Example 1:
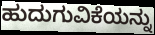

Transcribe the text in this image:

ಹುದುಗುವಿಕೆಯನ್ನು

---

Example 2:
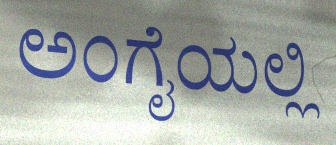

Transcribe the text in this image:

ಅಂಗೈಯಲ್ಲಿ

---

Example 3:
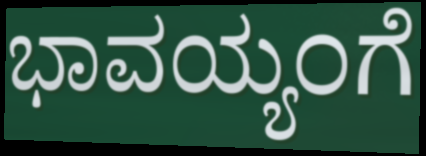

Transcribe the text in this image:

ಭಾವಯ್ಯಂಗೆ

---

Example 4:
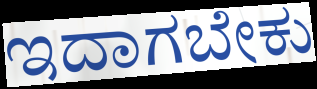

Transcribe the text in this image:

ಇದಾಗಬೇಕು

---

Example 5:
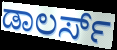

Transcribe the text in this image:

ಡಾಲರ್ಸ್